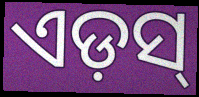
ଏଡ଼ସ୍